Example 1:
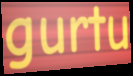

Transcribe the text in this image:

gurtu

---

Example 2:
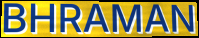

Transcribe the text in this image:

BHRAMAN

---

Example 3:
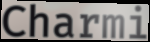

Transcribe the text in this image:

Charmi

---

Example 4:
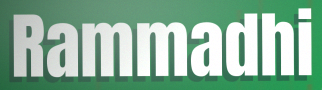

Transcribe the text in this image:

Rammadhi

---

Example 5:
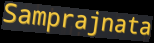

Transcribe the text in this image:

Samprajnata